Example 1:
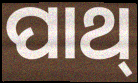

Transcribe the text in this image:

ପାଥ୍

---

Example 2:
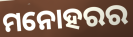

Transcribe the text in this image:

ମନୋହରର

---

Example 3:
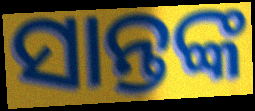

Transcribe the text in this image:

ସାନ୍ତଙ୍କ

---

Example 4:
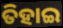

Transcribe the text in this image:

ତିହାଇ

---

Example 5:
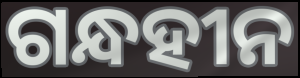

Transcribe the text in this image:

ଗନ୍ଧହୀନ